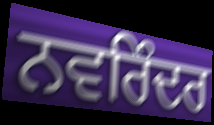
ਨਵਰਿੰਦਰ